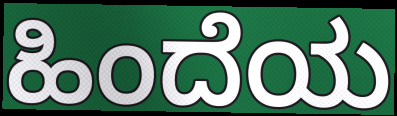
ಹಿಂದೆಯ